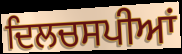
ਦਿਲਚਸਪੀਆਂ